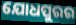
ଯୋଧପୁରର